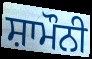
ਸ਼ਾਮੌਨੀ